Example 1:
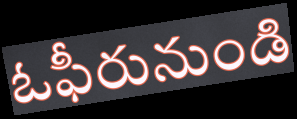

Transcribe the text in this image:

ఓఫీరునుండి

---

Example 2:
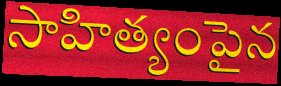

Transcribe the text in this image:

సాహిత్యంపైన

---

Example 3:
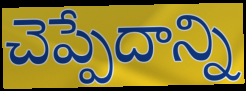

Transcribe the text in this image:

చెప్పేదాన్ని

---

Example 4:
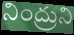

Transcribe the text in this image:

నింద్రుని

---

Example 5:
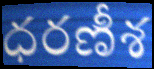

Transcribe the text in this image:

ధరణీశ